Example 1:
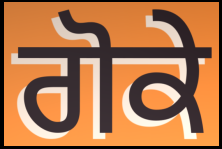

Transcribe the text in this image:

ਗੋਕੇ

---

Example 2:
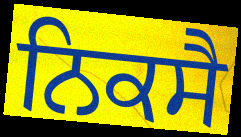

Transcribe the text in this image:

ਨਿਕਸੈ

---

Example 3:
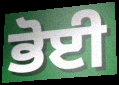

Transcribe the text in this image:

ਭੋਈ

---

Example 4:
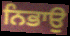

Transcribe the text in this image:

ਨਿਭਾਉ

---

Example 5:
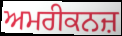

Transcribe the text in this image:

ਅਮਰੀਕਨਜ਼